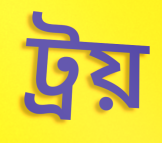
ট্রয়